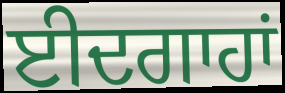
ਈਦਗਾਹਾਂ